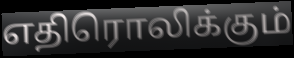
எதிரொலிக்கும்